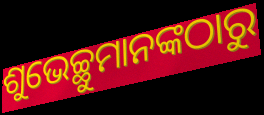
ଶୁଭେଚ୍ଛୁମାନଙ୍କଠାରୁ